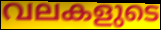
വലകളുടെ